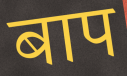
बाप